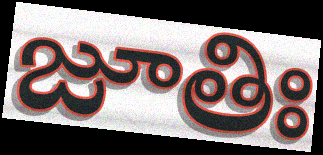
జూతిః